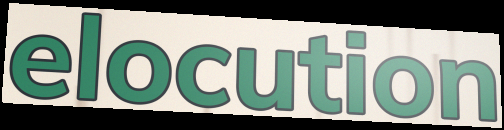
elocution